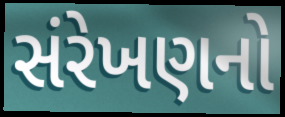
સંરેખણનો